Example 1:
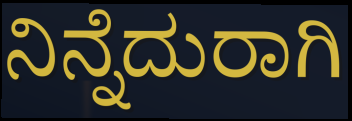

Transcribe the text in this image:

ನಿನ್ನೆದುರಾಗಿ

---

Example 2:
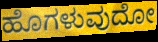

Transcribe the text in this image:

ಹೊಗಳುವುದೋ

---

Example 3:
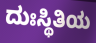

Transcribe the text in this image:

ದುಃಸ್ಥಿತಿಯ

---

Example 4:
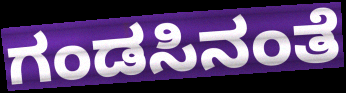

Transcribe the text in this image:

ಗಂಡಸಿನಂತೆ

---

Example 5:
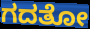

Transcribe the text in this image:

ಗದತೋ